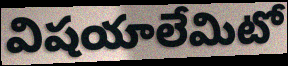
విషయాలేమిటో